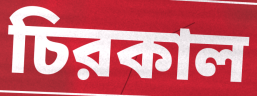
চিরকাল